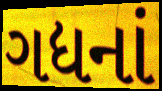
ગદ્યનાં